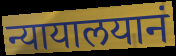
न्यायालयानं